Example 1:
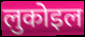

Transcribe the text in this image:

लुकोइल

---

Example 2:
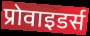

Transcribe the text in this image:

प्रोवाइडर्स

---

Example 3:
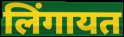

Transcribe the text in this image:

लिंगायत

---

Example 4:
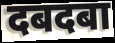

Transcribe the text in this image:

दबदबा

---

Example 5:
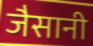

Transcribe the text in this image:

जैसानी